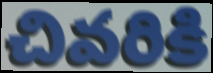
చివరికి